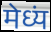
मेध्यं